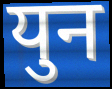
युन